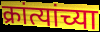
क्रांत्यांच्या